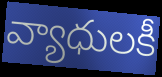
వ్యాధులకీ